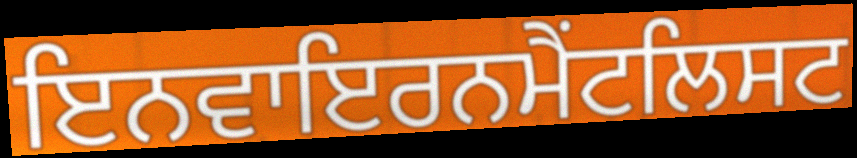
ਇਨਵਾਇਰਨਮੈਂਟਲਿਸਟ